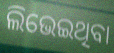
ଲିଭେଇଥିବା